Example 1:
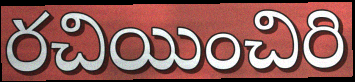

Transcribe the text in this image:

రచియించిరి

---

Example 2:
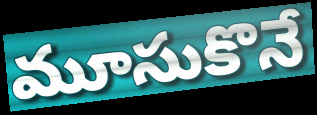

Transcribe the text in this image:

మూసుకొనే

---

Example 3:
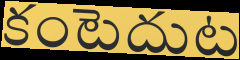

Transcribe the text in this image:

కంటెదుట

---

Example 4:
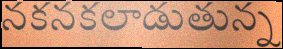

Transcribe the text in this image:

నకనకలాడుతున్న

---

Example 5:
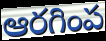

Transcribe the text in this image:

ఆరగింప